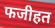
फजीहत